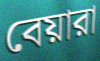
বেয়ারা